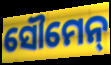
ସୌମେନ୍